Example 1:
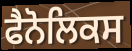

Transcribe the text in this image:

ਫੈਨੋਲਿਕਸ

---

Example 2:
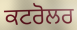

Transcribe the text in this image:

ਕਟਰੋਲਰ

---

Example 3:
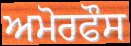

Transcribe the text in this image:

ਅਮੋਰਫੌਸ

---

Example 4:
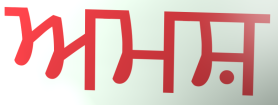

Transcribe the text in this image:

ਅਮਸ਼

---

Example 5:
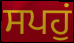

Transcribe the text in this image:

ਸਪਹੁਂ